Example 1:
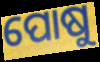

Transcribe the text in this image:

ପୋଷୁ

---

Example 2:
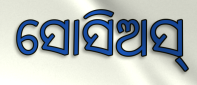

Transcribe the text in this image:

ସୋସିଅସ୍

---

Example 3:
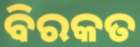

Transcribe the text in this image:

ବିରକତ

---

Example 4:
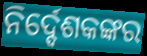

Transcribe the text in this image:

ନିର୍ଦ୍ଦେଶକଙ୍କର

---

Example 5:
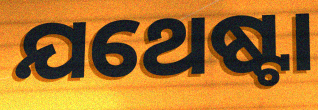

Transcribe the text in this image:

ଯଥେଷ୍ଟା